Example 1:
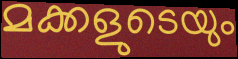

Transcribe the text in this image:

മക്കളുടെയും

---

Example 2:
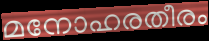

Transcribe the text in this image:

മനോഹരതീരം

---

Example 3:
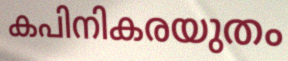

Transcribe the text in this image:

കപിനികരയുതം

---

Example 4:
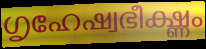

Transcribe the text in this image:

ഗൃഹേഷ്വഭീക്ഷ്ണം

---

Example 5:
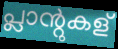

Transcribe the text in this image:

പ്ലാന്റുകള്